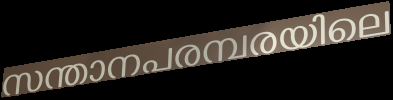
സന്താനപരമ്പരയിലെ